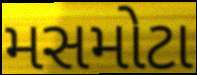
મસમોટા